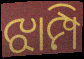
ଝାମ୍ପି